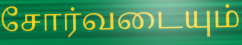
சோர்வடையும்